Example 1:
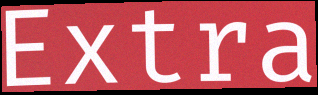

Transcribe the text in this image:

Extra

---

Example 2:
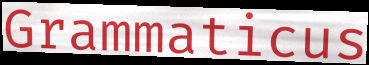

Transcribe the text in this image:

Grammaticus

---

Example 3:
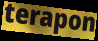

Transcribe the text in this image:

terapon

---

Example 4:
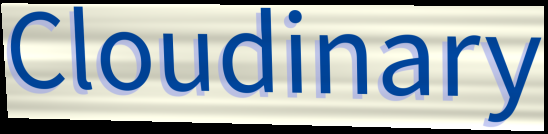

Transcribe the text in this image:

Cloudinary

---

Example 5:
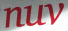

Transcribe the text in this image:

nuv